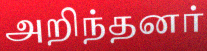
அறிந்தனர்